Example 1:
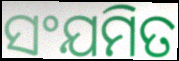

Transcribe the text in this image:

ସଂଯମିତ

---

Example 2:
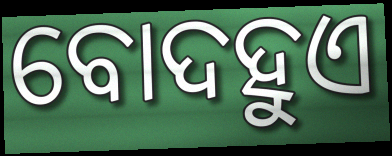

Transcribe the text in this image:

ବୋଦହୁଏ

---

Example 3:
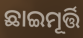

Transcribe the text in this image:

ଛାଇମୂର୍ତ୍ତି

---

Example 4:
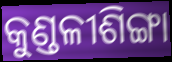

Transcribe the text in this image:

କୁଣ୍ଡଳୀଶିଙ୍ଗା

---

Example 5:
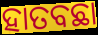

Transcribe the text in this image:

ହାତବଛା